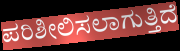
ಪರಿಶೀಲಿಸಲಾಗುತ್ತಿದೆ